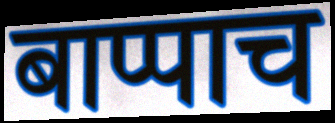
बाप्पाच